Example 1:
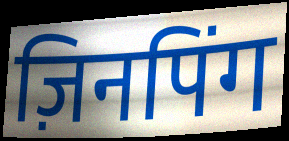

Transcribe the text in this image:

ज़िनपिंग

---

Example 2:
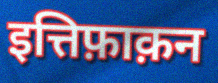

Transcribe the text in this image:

इत्तिफ़ाक़न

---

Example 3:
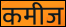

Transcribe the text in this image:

कमीज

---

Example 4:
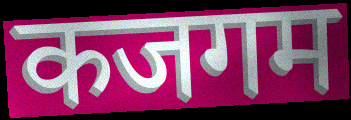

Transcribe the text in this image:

कजगम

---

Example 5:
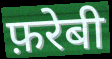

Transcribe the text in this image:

फ़रेबी